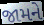
જામને